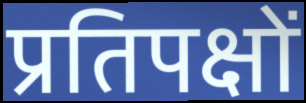
प्रतिपक्षों